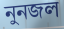
নুনজল